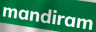
mandiram